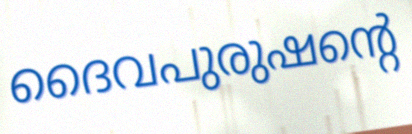
ദൈവപുരുഷന്റെ